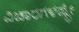
ವಿಚಾರಗಳಷ್ಟೇ